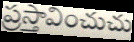
ప్రస్తావించుచు